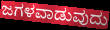
ಜಗಳವಾಡುವುದು